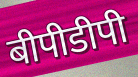
बीपीडीपी